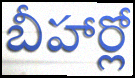
బీహార్లో